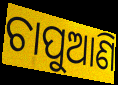
ଚାପୁଆଣି